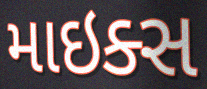
માઇક્સ